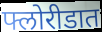
फ्लोरीडात